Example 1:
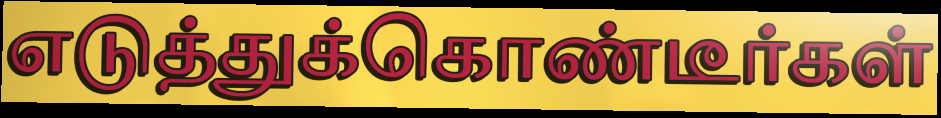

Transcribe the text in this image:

எடுத்துக்கொண்டீர்கள்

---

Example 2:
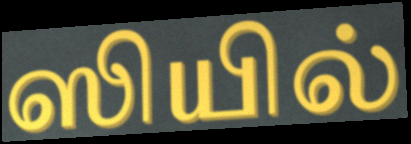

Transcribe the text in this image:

ஸியில்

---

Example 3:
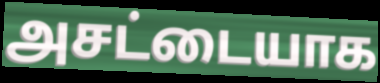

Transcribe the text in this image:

அசட்டையாக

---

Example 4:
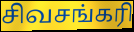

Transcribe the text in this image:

சிவசங்கரி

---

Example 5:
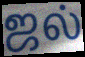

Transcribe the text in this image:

ஜல்